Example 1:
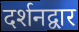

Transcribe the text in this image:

दर्शनद्वार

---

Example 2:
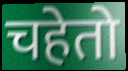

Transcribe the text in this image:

चहेतो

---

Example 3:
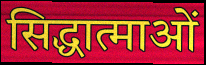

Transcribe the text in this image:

सिद्धात्माओं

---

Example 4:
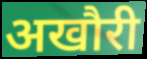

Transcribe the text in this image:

अखौरी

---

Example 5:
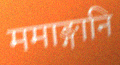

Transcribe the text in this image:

ममाङ्गानि